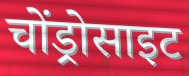
चोंड्रोसाइट